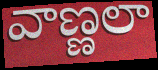
వాణ్ణలా